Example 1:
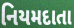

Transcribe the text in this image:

નિયમદાતા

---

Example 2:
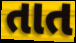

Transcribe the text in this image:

તાત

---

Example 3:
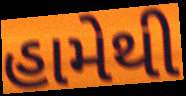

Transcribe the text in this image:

હામેથી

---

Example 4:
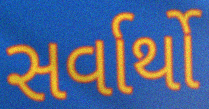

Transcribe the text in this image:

સર્વાર્થો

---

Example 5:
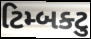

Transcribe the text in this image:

ટિમ્બક્ટુ